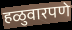
हळुवारपणे